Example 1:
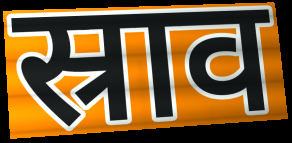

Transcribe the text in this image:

स्राव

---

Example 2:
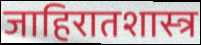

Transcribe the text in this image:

जाहिरातशास्त्र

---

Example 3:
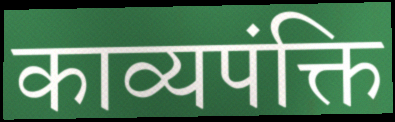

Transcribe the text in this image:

काव्यपंक्ति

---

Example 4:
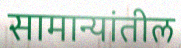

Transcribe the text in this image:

सामान्यांतील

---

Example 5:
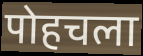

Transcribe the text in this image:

पोहचला